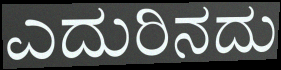
ಎದುರಿನದು